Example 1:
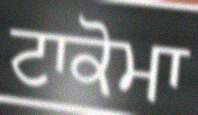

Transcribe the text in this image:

ਟਾਕੋਮਾ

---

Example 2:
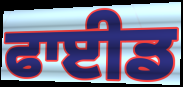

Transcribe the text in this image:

ਫਾਈਡ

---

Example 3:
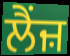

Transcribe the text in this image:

ਲੈਂਜ਼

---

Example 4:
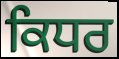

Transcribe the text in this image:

ਕਿਧਰ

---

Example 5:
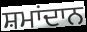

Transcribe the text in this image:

ਸ਼ਮਾਂਦਾਨ